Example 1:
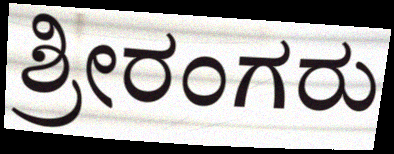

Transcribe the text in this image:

ಶ್ರೀರಂಗರು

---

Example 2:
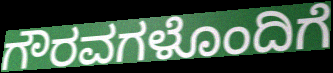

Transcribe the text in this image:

ಗೌರವಗಳೊಂದಿಗೆ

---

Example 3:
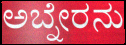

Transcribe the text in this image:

ಅಬ್ನೇರನು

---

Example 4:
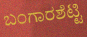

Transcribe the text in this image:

ಬಂಗಾರಶೆಟ್ಟಿ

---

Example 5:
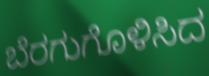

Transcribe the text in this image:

ಬೆರಗುಗೊಳಿಸಿದ